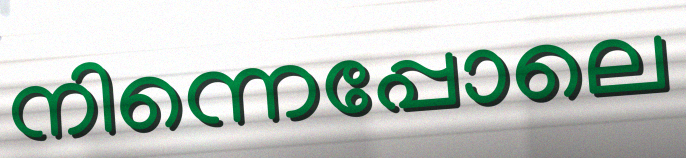
നിന്നെപ്പോലെ